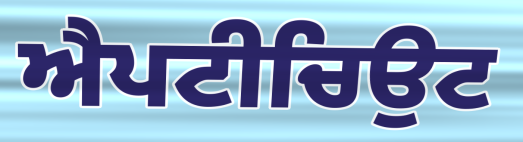
ਐਪਟੀਚਿਉਟ